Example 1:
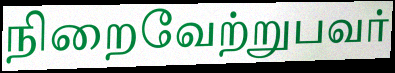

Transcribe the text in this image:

நிறைவேற்றுபவர்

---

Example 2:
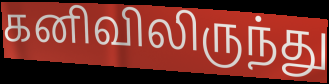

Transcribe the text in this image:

கனிவிலிருந்து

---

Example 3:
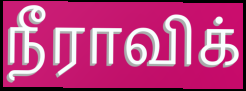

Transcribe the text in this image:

நீராவிக்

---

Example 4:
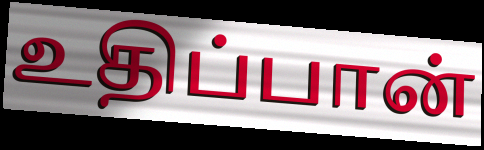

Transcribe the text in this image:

உதிப்பான்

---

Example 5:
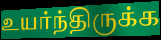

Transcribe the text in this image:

உயர்ந்திருக்க